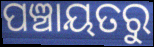
ପଞ୍ଚାୟତରୁ